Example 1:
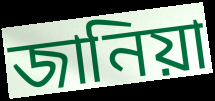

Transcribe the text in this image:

জানিয়া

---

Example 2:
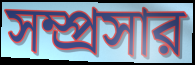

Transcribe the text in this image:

সম্প্রসার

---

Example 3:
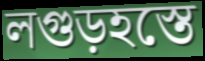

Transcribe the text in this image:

লগুড়হস্তে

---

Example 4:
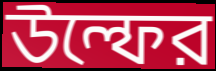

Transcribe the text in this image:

উল্ফের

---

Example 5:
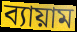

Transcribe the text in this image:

ব্যায়াম